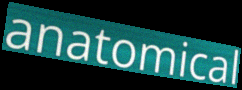
anatomical